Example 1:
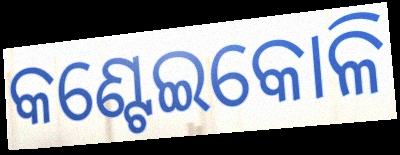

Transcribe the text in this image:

କଣ୍ଟେଇକୋଳି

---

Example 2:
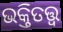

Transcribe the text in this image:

ଭକ୍ତିତତ୍ତ୍ୱ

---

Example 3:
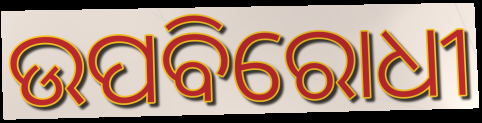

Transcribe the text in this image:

ଉପବିରୋଧୀ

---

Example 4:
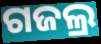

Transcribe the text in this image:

ଗଜଲ୍ର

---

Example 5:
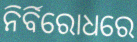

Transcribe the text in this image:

ନିର୍ବିରୋଧରେ